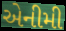
એનીમી